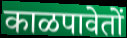
काळपावेतों